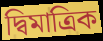
দ্বিমাত্রিক